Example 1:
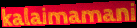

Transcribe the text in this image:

kalaimamani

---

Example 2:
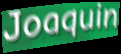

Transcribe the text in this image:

Joaquin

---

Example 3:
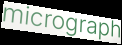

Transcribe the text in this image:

micrograph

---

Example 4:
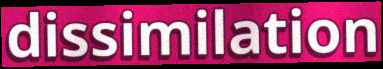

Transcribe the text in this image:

dissimilation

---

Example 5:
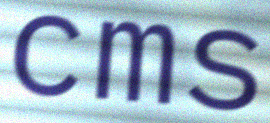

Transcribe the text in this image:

cms